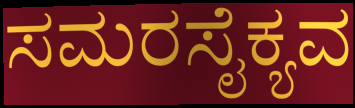
ಸಮರಸೈಕ್ಯವ